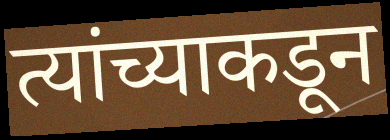
त्यांच्याकडून